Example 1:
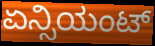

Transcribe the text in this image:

ಏನ್ಸಿಯಂಟ್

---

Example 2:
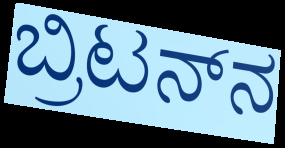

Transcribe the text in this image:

ಬ್ರಿಟನ್‌ನ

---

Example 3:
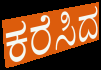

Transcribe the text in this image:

ಕರೆಸಿದ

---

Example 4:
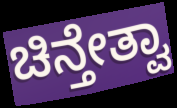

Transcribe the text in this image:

ಚಿನ್ತೇತ್ವಾ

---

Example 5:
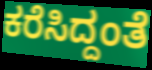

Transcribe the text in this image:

ಕರೆಸಿದ್ದಂತೆ